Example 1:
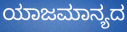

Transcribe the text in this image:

ಯಾಜಮಾನ್ಯದ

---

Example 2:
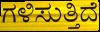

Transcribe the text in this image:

ಗಳಿಸುತ್ತಿದೆ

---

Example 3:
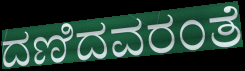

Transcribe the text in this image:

ದಣಿದವರಂತೆ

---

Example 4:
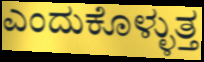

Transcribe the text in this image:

ಎಂದುಕೊಳ್ಳುತ್ತ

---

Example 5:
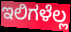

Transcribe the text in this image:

ಇಲಿಗಳೆಲ್ಲ